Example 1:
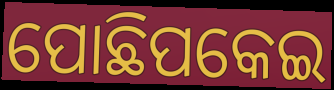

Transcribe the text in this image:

ପୋଛିପକେଇ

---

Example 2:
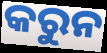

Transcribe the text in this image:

କରୁନ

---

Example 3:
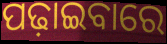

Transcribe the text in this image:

ପଢ଼ାଇବାରେ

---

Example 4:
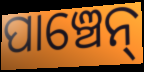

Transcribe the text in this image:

ପାଞ୍ଚେନ୍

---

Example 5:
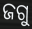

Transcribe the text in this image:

ଜଗୁ